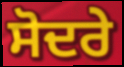
ਸੋਦਰੇ